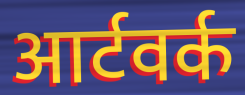
आर्टवर्क